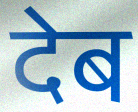
देब